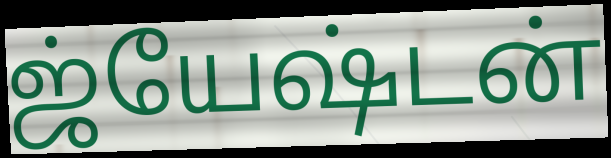
ஜ்யேஷ்டன்